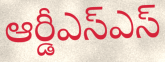
ఆర్డీఎస్ఎస్